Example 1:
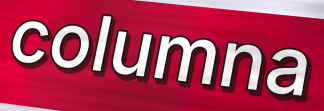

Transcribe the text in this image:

columna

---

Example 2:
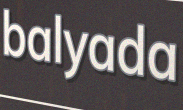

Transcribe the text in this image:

balyada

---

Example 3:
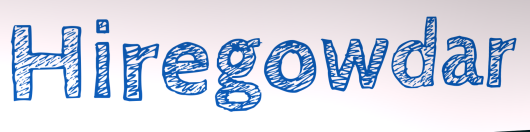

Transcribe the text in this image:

Hiregowdar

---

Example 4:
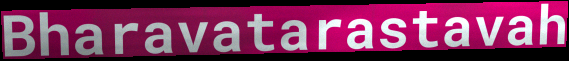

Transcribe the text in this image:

Bharavatarastavah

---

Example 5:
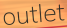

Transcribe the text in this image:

outlet